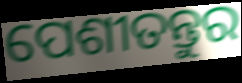
ପେଶୀତନ୍ତୁର